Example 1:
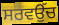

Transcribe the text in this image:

ਸਰਵਉੱਚ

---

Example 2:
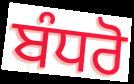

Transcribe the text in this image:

ਬੰਧਰੋ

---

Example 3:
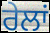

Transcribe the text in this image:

ਰੇਲਾਂ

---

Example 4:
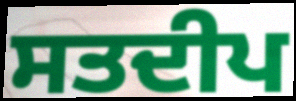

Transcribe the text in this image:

ਸਤਦੀਪ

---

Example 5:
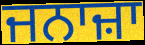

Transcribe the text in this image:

ਜਨਾਜ਼ਾ